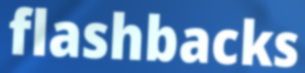
flashbacks